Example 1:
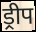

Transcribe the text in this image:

ड्रीप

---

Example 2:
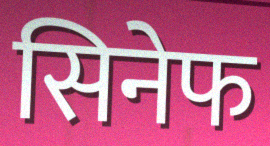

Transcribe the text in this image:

सिनेफ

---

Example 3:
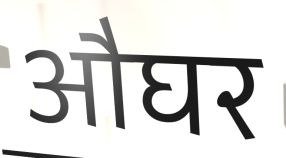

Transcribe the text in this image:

औघर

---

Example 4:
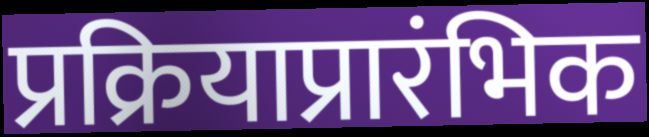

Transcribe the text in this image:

प्रक्रियाप्रारंभिक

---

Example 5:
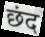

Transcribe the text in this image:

छंद